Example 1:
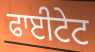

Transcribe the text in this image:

ਫਾਈਟੇਟ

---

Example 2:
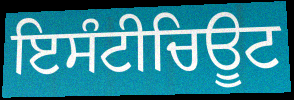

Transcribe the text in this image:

ਇਸੰਟੀਚਿਊਟ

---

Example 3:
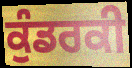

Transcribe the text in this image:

ਕੁੰਡਰਕੀ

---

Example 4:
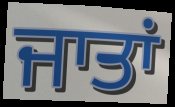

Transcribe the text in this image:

ਜਾਤਾਂ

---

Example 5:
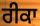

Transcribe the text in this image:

ਰੀਕਾ